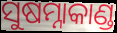
ସୁଷମ୍ନାକାଣ୍ଡ